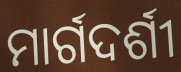
ମାର୍ଗଦର୍ଶୀ